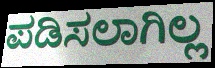
ಪಡಿಸಲಾಗಿಲ್ಲ